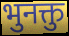
भुनक्तु